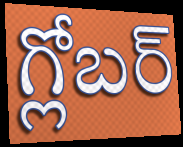
గ్లోబర్